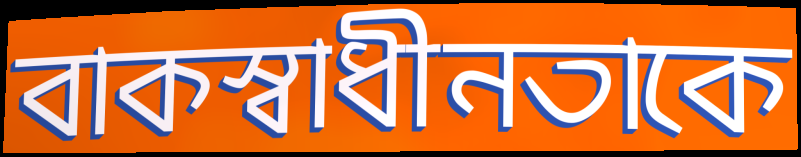
বাকস্বাধীনতাকে